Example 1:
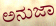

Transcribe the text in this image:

ಅನುಜಾ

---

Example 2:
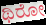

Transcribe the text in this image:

ಥಿರೋ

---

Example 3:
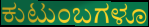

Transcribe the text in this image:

ಕುಟುಂಬಗಳೂ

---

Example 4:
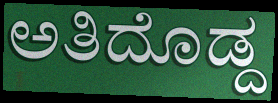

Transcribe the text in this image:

ಅತಿದೊಡ್ದ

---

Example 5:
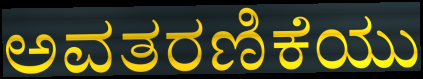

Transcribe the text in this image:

ಅವತರಣಿಕೆಯು